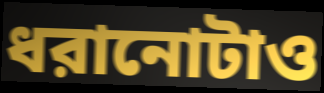
ধরানোটাও